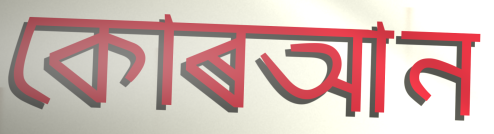
কোৰআন